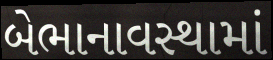
બેભાનાવસ્થામાં